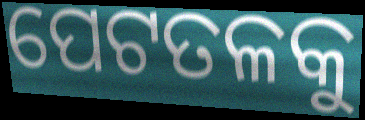
ପେଟତଳକୁ